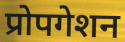
प्रोपगेशन